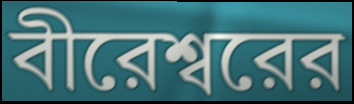
বীরেশ্বরের